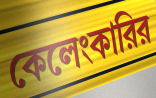
কেলেংকারির